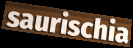
saurischia